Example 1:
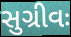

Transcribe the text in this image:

સુગ્રીવઃ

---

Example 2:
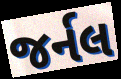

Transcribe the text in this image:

જર્નલ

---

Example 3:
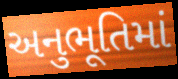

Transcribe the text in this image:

અનુભૂતિમાં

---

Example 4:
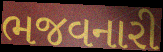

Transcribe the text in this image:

ભજવનારી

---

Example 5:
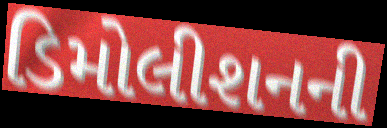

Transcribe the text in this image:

ડિમોલીશનની